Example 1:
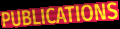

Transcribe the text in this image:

PUBLICATIONS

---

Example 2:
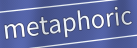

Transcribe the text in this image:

metaphoric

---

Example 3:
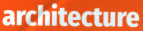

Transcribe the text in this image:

architecture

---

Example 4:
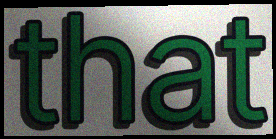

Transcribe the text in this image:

that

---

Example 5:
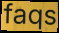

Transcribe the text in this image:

faqs